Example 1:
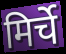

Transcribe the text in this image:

मिर्चे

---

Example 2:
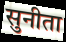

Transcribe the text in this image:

सुनीता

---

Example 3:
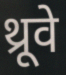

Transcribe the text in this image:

थ्रूवे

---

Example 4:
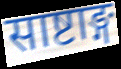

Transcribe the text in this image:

साष्टाङ्ग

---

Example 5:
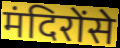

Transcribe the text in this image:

मंदिरोंसे